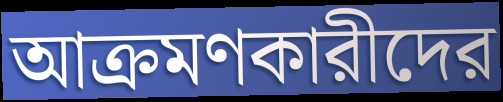
আক্রমণকারীদের